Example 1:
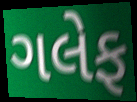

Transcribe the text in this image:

ગલેફ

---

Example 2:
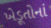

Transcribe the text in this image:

ખેડૂતોનાં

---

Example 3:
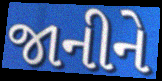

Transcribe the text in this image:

જાનીને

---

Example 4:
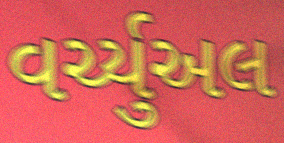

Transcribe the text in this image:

વર્ચ્યુઅલ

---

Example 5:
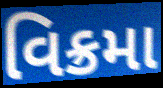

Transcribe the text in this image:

વિક્રમા